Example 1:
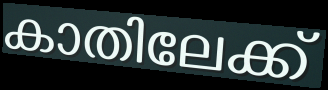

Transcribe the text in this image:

കാതിലേക്ക്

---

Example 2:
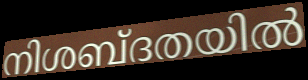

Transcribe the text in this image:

നിശബ്ദതയിൽ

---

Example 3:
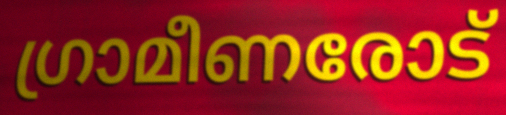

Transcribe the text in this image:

ഗ്രാമീണരോട്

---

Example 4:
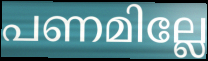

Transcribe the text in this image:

പണമില്ലേ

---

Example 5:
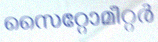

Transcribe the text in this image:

സൈറ്റോമീറ്റർ